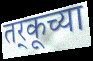
तर्कूच्या